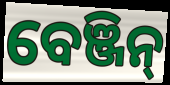
ବେଞ୍ଜିନ୍